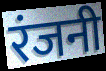
रंजनी